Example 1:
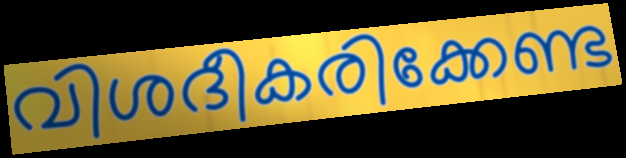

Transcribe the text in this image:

വിശദീകരിക്കേണ്ട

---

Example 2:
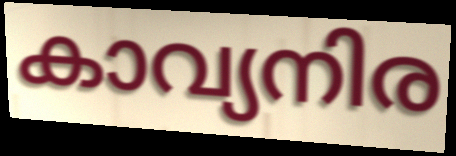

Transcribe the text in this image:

കാവ്യനിര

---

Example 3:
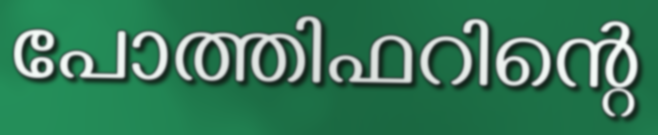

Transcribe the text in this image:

പോത്തിഫറിന്റെ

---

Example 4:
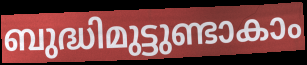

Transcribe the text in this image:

ബുദ്ധിമുട്ടുണ്ടാകാം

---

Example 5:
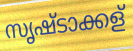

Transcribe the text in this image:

സൃഷ്ടാക്കള്